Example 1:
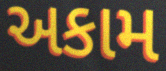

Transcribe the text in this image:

અકામ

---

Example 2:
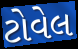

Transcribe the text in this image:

ટોવેલ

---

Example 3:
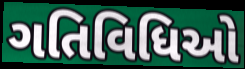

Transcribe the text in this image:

ગતિવિધિઓ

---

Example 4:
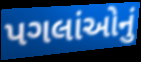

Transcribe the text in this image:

પગલાંઓનું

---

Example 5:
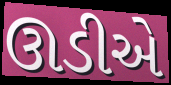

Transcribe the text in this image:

ઊડીએ